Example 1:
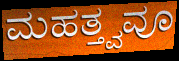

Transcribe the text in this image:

ಮಹತ್ತ್ವವೂ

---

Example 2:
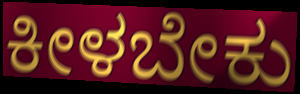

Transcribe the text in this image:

ಕೀಳಬೇಕು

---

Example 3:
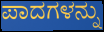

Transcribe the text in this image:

ಪಾದಗಳನ್ನು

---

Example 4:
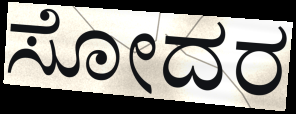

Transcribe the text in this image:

ಸೋದರ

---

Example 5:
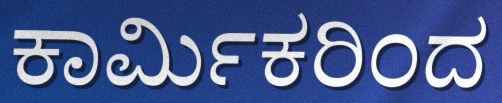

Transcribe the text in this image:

ಕಾರ್ಮಿಕರಿಂದ